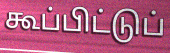
கூப்பிட்டுப்